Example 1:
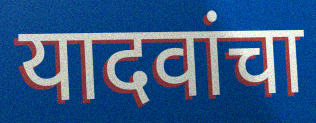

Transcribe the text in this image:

यादवांचा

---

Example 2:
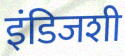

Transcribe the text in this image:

इंडिजशी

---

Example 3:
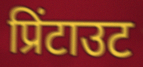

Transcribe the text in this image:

प्रिंटाउट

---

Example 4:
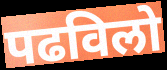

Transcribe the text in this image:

पढविलो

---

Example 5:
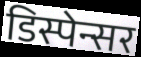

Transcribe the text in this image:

डिस्पेन्सर